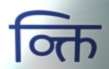
व्क्ति